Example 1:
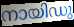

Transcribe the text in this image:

നായിഡു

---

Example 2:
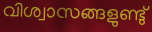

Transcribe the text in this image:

വിശ്വാസങ്ങളുണ്ടു്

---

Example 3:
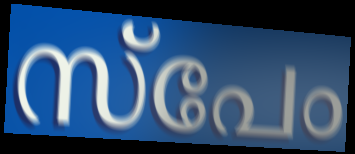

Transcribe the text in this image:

സ്പേം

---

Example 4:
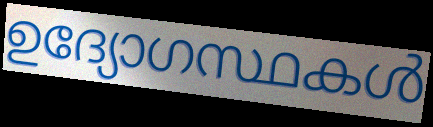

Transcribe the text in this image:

ഉദ്യോഗസ്ഥകൾ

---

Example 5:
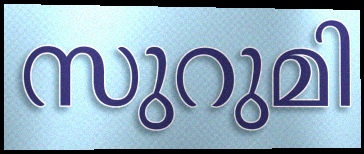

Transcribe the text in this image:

സുറുമി